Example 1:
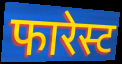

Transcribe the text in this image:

फारेस्ट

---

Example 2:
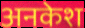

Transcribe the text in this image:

अनकेश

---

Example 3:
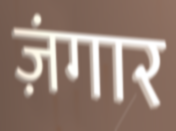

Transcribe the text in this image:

ज़ंगार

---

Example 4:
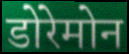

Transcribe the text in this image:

डोरेमोन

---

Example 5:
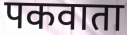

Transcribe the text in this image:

पकवाता